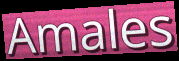
Amales